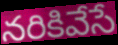
నరికివేసే